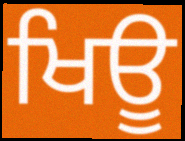
ਖਿਊ